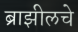
ब्राझीलचे